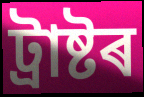
ট্ৰাষ্টৰ